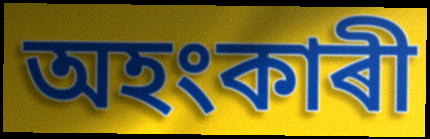
অহংকাৰী